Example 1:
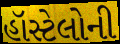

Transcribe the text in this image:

હૉસ્ટેલોની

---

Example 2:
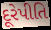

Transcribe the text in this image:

દૂરેપીતિ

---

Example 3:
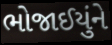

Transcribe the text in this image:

ભોજાઈયુંને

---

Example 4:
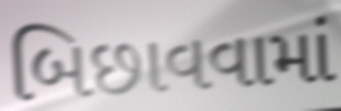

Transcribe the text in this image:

બિછાવવામાં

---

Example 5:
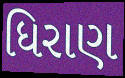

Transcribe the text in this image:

ધિરાણ